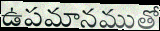
ఉపమానముతో